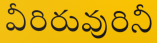
వీరిరువురినీ